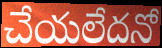
చేయలేదనో